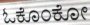
ಓಕೊಂಕೋ